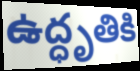
ఉద్ధృతికి